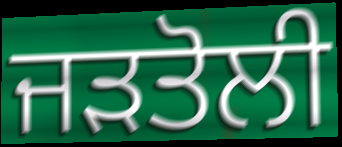
ਜੜਤੋਲੀ